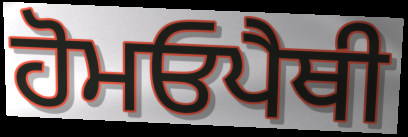
ਹੋਮਓਪੈਥੀ